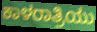
ಕಾಳರಾತ್ರಿಯು